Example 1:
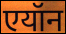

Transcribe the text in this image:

एयॉन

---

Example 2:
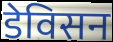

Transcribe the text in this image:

डेविसन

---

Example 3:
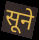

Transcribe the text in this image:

सूने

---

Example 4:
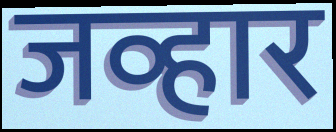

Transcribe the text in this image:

जव्हार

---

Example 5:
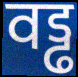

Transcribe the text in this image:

वड्ढ